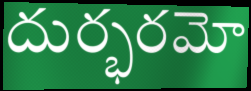
దుర్భరమో